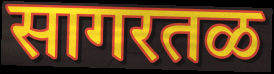
सागरतळ